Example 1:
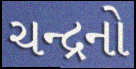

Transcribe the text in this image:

ચન્દ્રનો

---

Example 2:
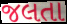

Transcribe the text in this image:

જલતા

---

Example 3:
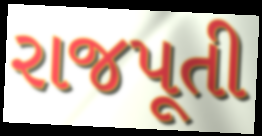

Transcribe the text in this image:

રાજપૂતી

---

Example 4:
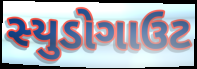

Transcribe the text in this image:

સ્યુડોગાઉટ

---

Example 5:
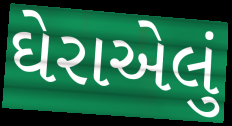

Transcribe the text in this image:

ઘેરાએલું